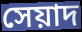
সেয়াদ